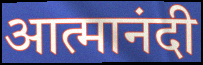
आत्मानंदी